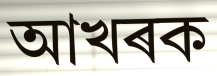
আখৰক